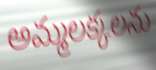
అమ్మలక్కలను